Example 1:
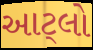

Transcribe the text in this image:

આટ્લો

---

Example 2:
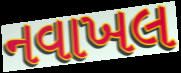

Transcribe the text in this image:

નવાખલ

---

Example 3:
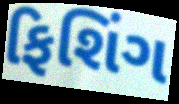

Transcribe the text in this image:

ફિશિંગ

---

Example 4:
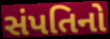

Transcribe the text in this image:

સંપતિનો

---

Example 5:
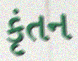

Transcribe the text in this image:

કૃંતન